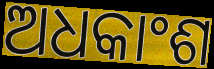
ଅଧକାଂଶ